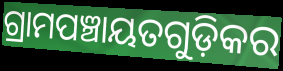
ଗ୍ରାମପଞ୍ଚାୟତଗୁଡ଼ିକର